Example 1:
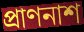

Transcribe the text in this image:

প্রাণনাশ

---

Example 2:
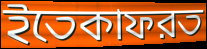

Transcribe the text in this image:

ইতেকাফরত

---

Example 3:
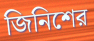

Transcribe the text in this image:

জিনিশের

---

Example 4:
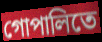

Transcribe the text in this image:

গোপালিতে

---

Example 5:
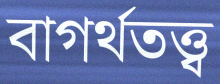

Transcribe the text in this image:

বাগর্থতত্ত্ব